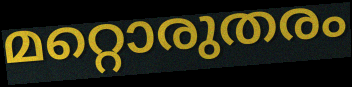
മറ്റൊരുതരം